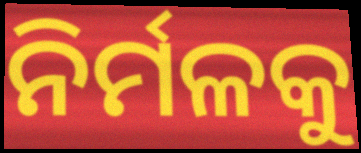
ନିର୍ମଳକୁ